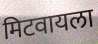
मिटवायला